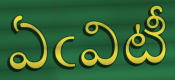
ఏఁవిటీ